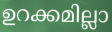
ഉറക്കമില്ലാ